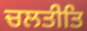
ਚਲਤੀਤਿ